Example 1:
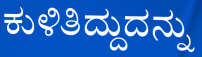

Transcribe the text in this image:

ಕುಳಿತಿದ್ದುದನ್ನು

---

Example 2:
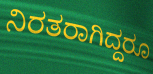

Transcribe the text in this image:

ನಿರತರಾಗಿದ್ದರೂ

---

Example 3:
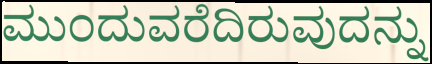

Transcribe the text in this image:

ಮುಂದುವರೆದಿರುವುದನ್ನು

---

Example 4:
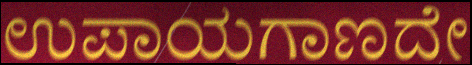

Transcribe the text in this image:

ಉಪಾಯಗಾಣದೇ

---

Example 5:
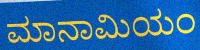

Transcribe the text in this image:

ಮಾನಾಮಿಯಂ